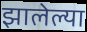
झालेल्या